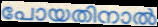
പോയതിനാൽ